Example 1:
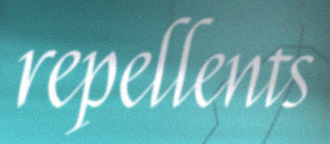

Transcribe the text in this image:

repellents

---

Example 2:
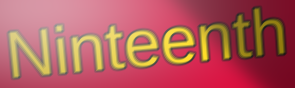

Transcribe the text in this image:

Ninteenth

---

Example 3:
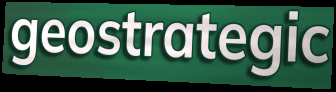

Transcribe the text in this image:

geostrategic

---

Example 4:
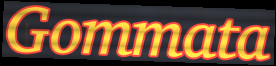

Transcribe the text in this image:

Gommata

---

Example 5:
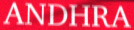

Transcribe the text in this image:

ANDHRA